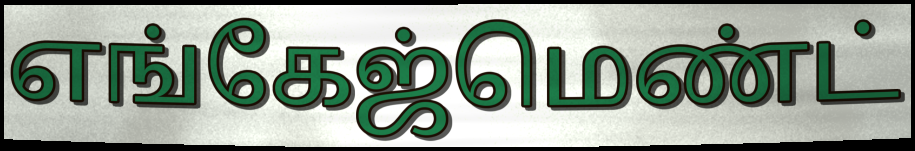
எங்கேஜ்மெண்ட்